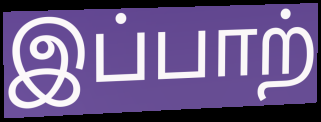
இப்பாற்